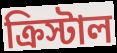
ক্রিস্টাল